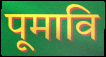
पूमावि